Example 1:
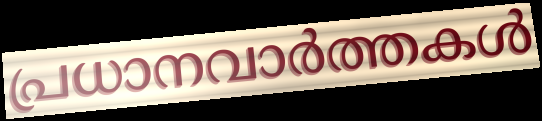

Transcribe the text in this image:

പ്രധാനവാർത്തകൾ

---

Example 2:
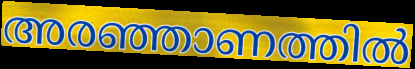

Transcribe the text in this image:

അരഞ്ഞാണത്തിൽ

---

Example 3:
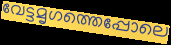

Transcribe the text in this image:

വേട്ടമൃഗത്തെപ്പോലെ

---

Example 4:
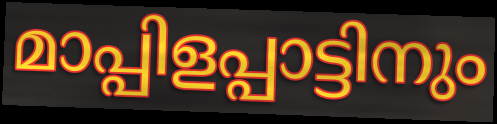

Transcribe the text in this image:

മാപ്പിളപ്പാട്ടിനും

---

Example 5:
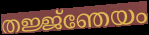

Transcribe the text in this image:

തജ്ജ്ഞേയം